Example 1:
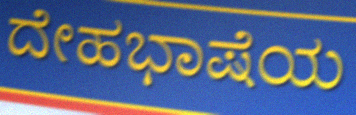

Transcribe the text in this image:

ದೇಹಭಾಷೆಯ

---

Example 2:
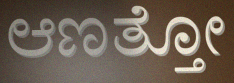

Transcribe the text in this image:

ಆಣತ್ತೋ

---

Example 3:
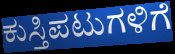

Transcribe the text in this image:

ಕುಸ್ತಿಪಟುಗಳಿಗೆ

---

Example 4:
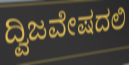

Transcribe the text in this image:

ದ್ವಿಜವೇಷದಲಿ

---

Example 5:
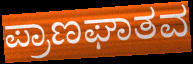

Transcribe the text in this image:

ಪ್ರಾಣಘಾತವ